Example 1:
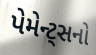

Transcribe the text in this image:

પેમેન્ટ્સનો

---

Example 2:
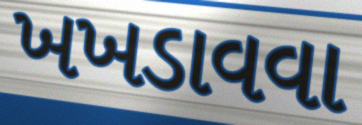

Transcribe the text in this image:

ખખડાવવા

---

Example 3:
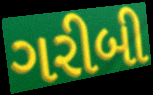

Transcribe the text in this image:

ગરીબી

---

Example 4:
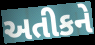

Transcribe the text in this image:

અતીકને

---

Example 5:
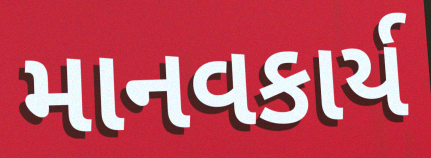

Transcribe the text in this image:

માનવકાર્ય